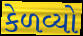
કેળવ્યો